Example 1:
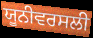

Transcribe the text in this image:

ਯੂਨੀਵਰਸਲੀ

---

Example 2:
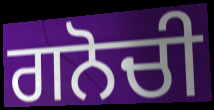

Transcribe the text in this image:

ਗਨੋਚੀ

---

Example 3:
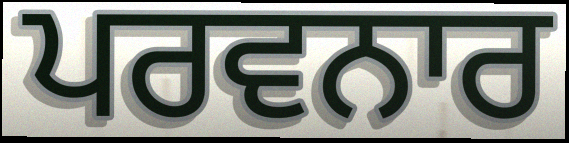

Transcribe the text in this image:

ਪਰਵਨਾਰ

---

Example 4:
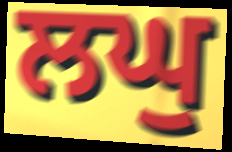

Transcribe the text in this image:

ਲਘੁ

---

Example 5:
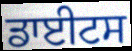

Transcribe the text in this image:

ਡਾਈਟਸ